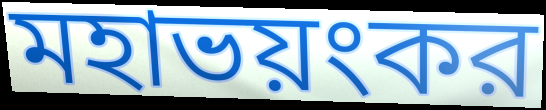
মহাভয়ংকর